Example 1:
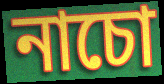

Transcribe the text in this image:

নাচো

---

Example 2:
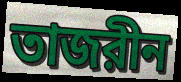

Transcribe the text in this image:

তাজরীন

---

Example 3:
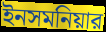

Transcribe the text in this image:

ইনসমনিয়ার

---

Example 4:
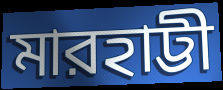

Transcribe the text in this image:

মারহাট্টী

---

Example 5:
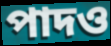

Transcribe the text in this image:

পাদও